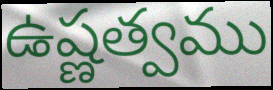
ఉష్ణత్వము